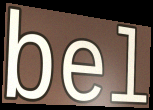
bel